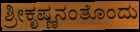
ಶ್ರೀಕೃಷ್ಣನಂತೊಂದು